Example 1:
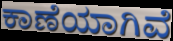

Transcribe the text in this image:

ಕಾಣೆಯಾಗಿವೆ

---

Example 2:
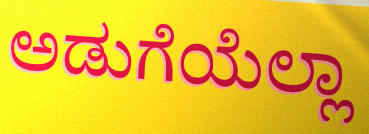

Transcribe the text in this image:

ಅಡುಗೆಯೆಲ್ಲಾ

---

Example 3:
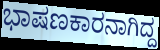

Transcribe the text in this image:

ಭಾಷಣಕಾರನಾಗಿದ್ದ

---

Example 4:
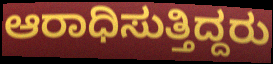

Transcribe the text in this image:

ಆರಾಧಿಸುತ್ತಿದ್ದರು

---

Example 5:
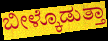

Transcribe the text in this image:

ಬೀಳ್ಕೊಡುತ್ತಾ